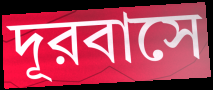
দূরবাসে